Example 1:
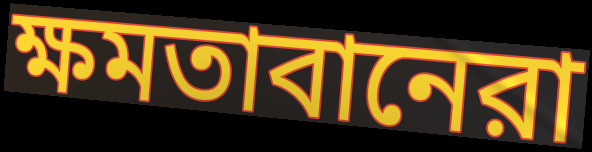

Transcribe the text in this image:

ক্ষমতাবানেরা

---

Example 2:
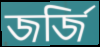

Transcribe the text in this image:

জর্জি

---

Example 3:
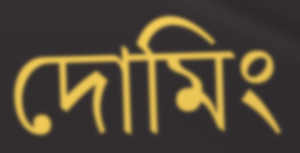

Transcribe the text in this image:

দোমিং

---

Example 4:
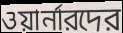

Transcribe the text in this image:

ওয়ার্নারদের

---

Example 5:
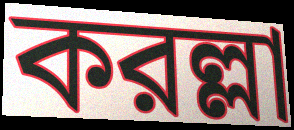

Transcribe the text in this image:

করল্লা